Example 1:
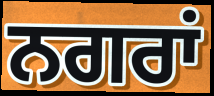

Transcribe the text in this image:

ਨਗਰਾਂ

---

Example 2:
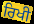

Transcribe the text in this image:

ਰਿਖੀ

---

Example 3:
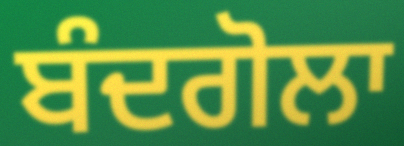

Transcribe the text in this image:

ਬੰਦਗੋਲਾ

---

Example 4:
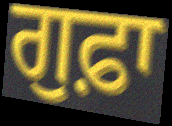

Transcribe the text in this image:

ਗੁਫ਼ਾ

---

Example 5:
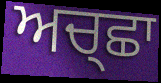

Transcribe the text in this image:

ਅਚ੍ਛਾ